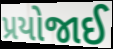
પ્રયોજાઈ